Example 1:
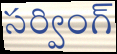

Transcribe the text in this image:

సర్వింగ్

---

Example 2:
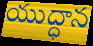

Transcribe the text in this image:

యుద్ధాన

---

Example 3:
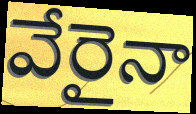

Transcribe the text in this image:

వేరైనా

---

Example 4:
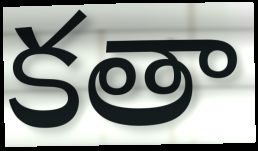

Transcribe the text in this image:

కతా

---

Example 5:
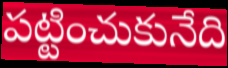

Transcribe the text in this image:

పట్టించుకునేది